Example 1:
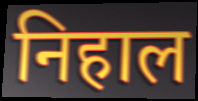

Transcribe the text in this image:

निहाल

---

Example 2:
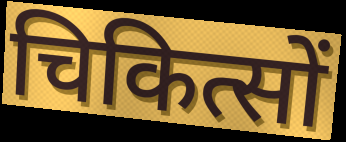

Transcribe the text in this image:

चिकित्सों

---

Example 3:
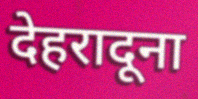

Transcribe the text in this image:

देहरादूना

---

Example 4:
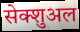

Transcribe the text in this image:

सेक्शुअल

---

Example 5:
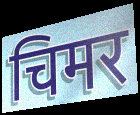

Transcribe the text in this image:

चिमर